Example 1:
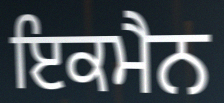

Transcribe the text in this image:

ਇਕਮੈਨ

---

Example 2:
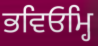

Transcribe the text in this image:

ਭਵਿਓਮ੍ਹਿ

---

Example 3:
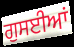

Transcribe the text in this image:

ਗੁਸਈਆਂ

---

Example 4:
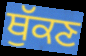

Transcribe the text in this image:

ਥੁੱਕਣ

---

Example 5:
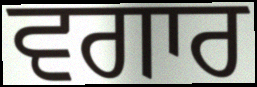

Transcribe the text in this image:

ਵਗਾਰ